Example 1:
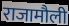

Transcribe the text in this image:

राजामौली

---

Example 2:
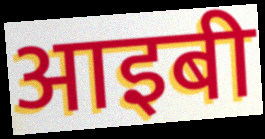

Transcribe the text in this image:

आइबी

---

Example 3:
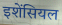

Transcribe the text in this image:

इशेंसियल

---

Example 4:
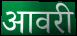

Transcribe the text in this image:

आवरी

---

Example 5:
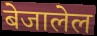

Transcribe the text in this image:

बेजालेल